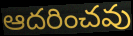
ఆదరించవు